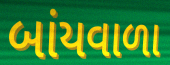
બાંયવાળા